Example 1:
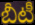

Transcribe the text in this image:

బీటీ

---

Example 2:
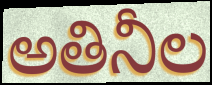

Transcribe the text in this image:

అతినీల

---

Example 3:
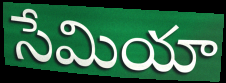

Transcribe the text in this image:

సేమియా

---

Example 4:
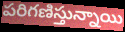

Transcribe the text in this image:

పరిగణిస్తున్నాయి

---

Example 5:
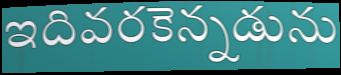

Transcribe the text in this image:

ఇదివరకెన్నడును